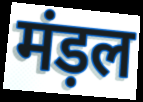
मंड़ल